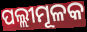
ପଲ୍ଲୀମୂଳକ